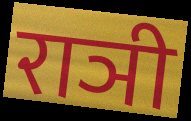
राञी